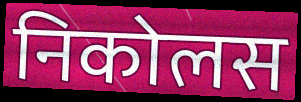
निकोलस